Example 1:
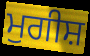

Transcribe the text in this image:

ਮੁਗੀਸ਼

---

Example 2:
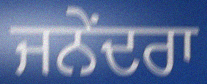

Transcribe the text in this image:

ਜਨੇਂਦਰਾ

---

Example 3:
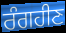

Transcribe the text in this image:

ਰੰਗਹੀਣ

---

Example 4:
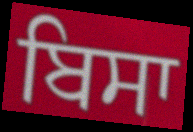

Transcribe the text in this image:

ਬਿਸਾ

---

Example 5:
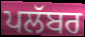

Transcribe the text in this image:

ਪਲੱਬਰ